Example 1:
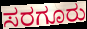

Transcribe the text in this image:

ಸರಗೂರು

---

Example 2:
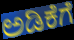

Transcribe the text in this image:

ಅಡಿಕೆಗೆ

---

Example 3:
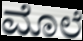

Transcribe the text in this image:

ಮೊಲೆ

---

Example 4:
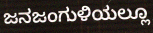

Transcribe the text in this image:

ಜನಜಂಗುಳಿಯಲ್ಲೂ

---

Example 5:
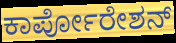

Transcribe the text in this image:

ಕಾರ್ಪೋರೇಶನ್